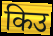
किउ